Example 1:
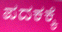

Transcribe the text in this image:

ಪದಕಕ್ಕೆ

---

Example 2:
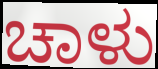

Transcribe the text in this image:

ಚಾಳು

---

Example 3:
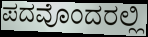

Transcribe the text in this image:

ಪದವೊಂದರಲ್ಲಿ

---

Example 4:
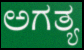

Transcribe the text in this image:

ಅಗತ್ಯ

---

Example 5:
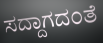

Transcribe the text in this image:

ಸದ್ದಾಗದಂತೆ